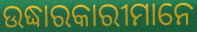
ଉଦ୍ଧାରକାରୀମାନେ